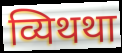
व्यिथथा